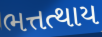
ભત્તત્થાય